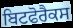
ਬਿਟਫੋਰੈਕਸ